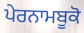
ਪੇਰਨਾਮਬੂਕੋ